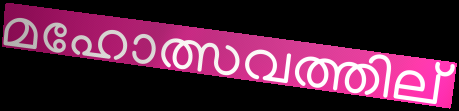
മഹോത്സവത്തില്